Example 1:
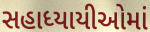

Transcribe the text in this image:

સહાધ્યાયીઓમાં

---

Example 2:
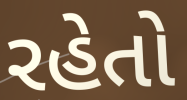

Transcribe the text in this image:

રહેતો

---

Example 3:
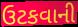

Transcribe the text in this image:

ઉટકવાની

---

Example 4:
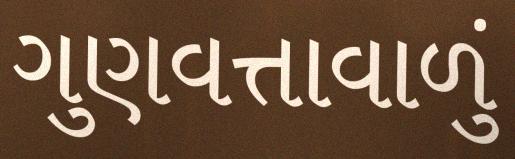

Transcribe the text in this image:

ગુણવત્તાવાળું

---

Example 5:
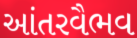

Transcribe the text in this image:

આંતરવૈભવ